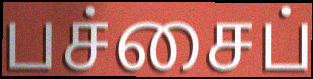
பச்சைப்